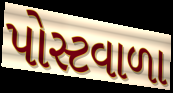
પોસ્ટવાળા